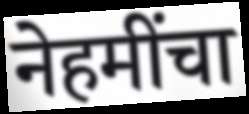
नेहमींचा